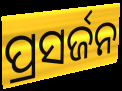
ପ୍ରସର୍ଜନ